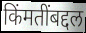
किंमतींबद्दल